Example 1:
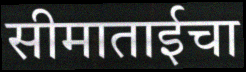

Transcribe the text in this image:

सीमाताईचा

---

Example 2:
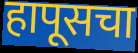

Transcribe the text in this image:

हापूसचा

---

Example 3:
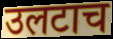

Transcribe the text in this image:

उलटाच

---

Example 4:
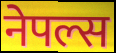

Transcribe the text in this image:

नेपल्स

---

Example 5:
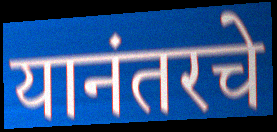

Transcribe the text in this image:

यानंतरचे